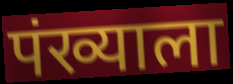
पंख्याला